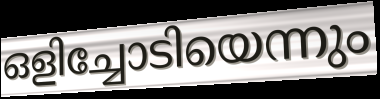
ഒളിച്ചോടിയെന്നും